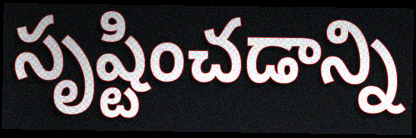
సృష్టించడాన్ని